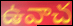
ఉవాచ